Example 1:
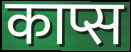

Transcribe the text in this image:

काप्स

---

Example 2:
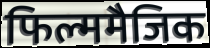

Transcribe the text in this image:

फिल्ममैजिक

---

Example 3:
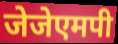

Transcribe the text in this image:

जेजेएमपी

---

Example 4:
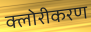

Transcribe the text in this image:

क्लोरीकरण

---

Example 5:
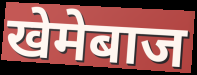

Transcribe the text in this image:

खेमेबाज